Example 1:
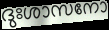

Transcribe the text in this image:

ദുഃശാസനോ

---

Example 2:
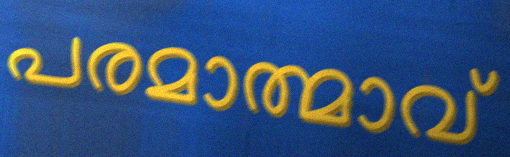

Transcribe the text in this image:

പരമാത്മാവ്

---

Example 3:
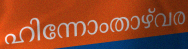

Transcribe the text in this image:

ഹിന്നോംതാഴ്‌വര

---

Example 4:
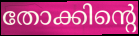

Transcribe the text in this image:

തോക്കിന്റെ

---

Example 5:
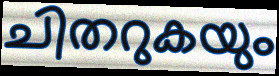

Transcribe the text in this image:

ചിതറുകയും